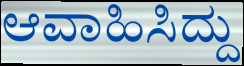
ಆವಾಹಿಸಿದ್ದು